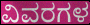
ವಿವರಗಳ